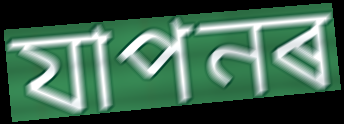
যাপনৰ